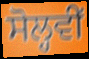
ਸੋਲ੍ਹਵੀਂ